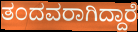
ತಂದವರಾಗಿದ್ದಾರೆ